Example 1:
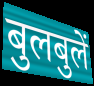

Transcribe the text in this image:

बुलबुलें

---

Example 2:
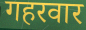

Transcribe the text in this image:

गहरवार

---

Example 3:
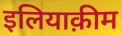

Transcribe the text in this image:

इलियाक़ीम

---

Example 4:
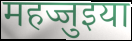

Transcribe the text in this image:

महज्जुइया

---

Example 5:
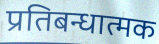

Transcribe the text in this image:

प्रतिबन्धात्मक